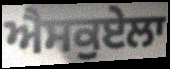
ਐਸਕੁਏਲਾ